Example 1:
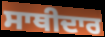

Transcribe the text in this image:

ਸਾਥੀਦਾਰ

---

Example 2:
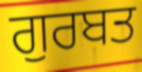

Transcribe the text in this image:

ਗੁਰਬਤ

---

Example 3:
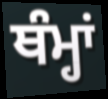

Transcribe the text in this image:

ਥੰਮ੍ਹਾਂ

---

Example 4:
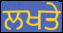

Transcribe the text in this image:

ਲਖਤੇ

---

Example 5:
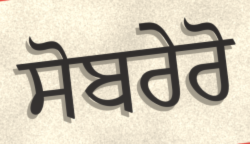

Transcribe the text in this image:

ਸੋਬਰੇਰੋ